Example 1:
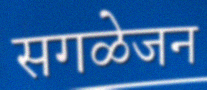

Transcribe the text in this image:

सगळेजन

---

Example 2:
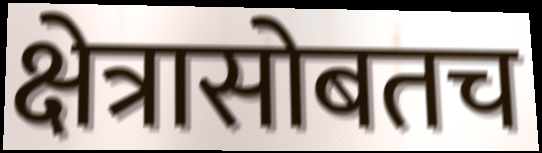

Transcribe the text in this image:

क्षेत्रासोबतच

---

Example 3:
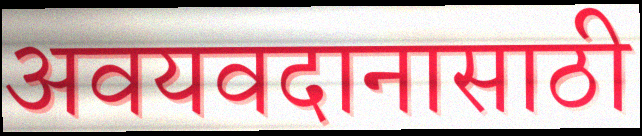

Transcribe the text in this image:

अवयवदानासाठी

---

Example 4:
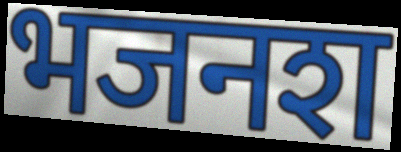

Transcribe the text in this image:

भजनश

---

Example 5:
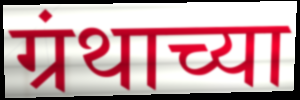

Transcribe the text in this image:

ग्रंथाच्या